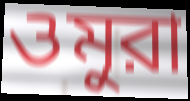
ওমুরা